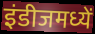
इंडीजमध्यें